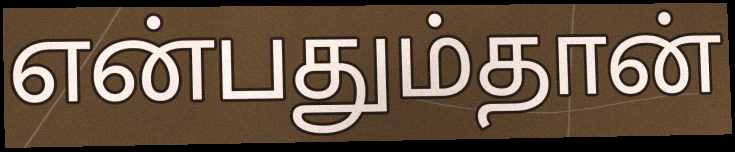
என்பதும்தான்